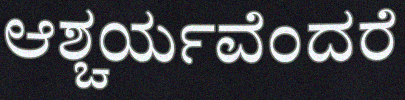
ಆಶ್ಚರ್ಯವೆಂದರೆ